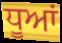
ਧੂਆਂ